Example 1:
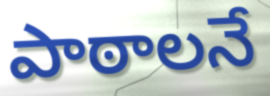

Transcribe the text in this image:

పాఠాలనే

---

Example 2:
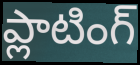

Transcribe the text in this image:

ప్లాటింగ్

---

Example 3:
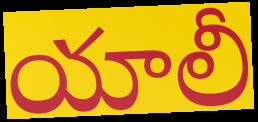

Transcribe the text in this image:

యాలీ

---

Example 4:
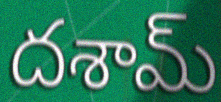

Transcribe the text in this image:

దశామ్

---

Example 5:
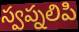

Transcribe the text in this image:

స్వప్నలిపి